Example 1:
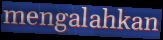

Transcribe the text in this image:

mengalahkan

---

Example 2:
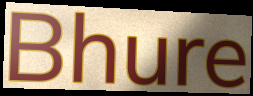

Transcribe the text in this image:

Bhure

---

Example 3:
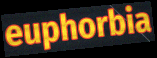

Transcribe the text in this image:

euphorbia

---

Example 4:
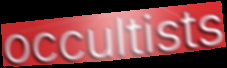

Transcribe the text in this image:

occultists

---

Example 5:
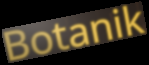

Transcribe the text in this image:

Botanik